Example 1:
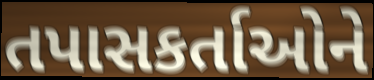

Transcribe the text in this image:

તપાસકર્તાઓને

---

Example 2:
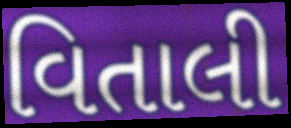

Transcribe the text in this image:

વિતાલી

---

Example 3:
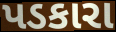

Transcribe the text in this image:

પડકારા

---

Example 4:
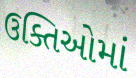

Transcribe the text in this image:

ઉક્તિઓમાં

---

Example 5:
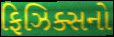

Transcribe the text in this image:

ફિઝિક્સનો